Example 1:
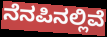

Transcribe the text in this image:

ನೆನಪಿನಲ್ಲಿವೆ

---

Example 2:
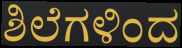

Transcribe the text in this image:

ಶಿಲೆಗಳಿಂದ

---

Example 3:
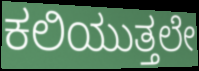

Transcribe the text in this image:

ಕಲಿಯುತ್ತಲೇ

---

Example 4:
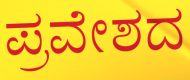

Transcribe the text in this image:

ಪ್ರವೇಶದ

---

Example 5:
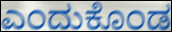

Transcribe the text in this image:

ಎಂದುಕೊಂಡ